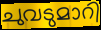
ചുവടുമാറി